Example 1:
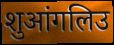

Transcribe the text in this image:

शुआंगलिउ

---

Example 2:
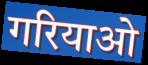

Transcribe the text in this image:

गरियाओ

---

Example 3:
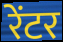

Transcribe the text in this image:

रेंटर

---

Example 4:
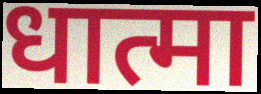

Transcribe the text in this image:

धात्मा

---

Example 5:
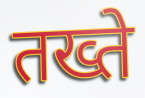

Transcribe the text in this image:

तख्ते